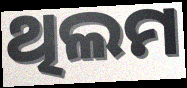
ଥିଲମ